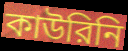
কাউরিনি